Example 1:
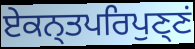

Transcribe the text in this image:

ਏਕਨ੍ਤਪਰਿਪੁਣ੍ਣਂ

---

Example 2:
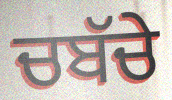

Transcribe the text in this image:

ਚਬੱਚੇ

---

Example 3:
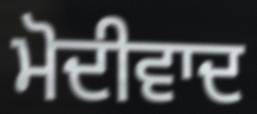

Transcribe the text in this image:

ਮੋਦੀਵਾਦ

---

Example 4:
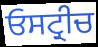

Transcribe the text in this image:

ਓਸਟ੍ਰੀਚ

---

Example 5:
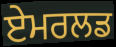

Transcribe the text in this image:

ਏਮਰਲਡ